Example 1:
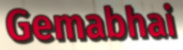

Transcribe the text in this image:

Gemabhai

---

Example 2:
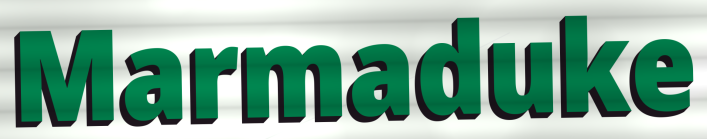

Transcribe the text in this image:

Marmaduke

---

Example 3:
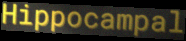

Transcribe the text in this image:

Hippocampal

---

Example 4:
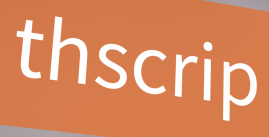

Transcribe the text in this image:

thscrip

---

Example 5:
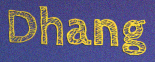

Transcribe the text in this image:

Dhang